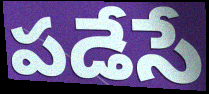
పడేసే